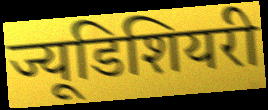
ज्यूडिशियरी